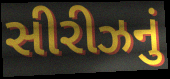
સીરીઝનું